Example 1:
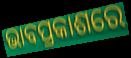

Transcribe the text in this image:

ଭାବପ୍ରକାଶରେ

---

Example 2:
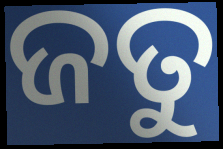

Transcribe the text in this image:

ଜତୁ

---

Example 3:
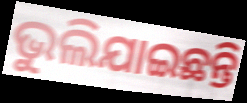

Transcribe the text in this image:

ଭୁଲିଯାଇଛନ୍ତି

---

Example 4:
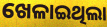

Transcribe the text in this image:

ଖେଳାଇଥିଲା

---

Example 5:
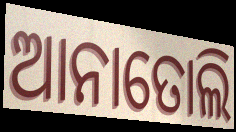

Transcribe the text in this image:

ଆନାତୋଲି